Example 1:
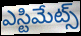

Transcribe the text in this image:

ఎస్టిమేట్స్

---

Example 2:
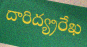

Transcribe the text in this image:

దారిద్య్రరేఖ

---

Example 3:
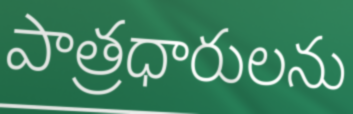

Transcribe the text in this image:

పాత్రధారులను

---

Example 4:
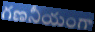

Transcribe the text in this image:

గణనీయంగా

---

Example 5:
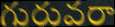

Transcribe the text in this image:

గురువరా